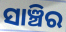
ସାଞ୍ଚିର